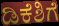
ಡಿಕೆಶಿಗೆ